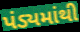
પંડ્યમાંથી